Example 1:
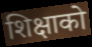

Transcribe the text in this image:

शिक्षाको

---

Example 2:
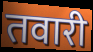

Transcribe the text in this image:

तवारी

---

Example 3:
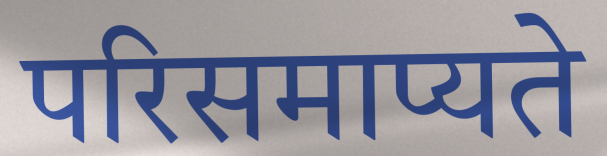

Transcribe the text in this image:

परिसमाप्यते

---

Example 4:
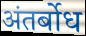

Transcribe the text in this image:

अंतर्बोध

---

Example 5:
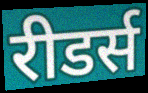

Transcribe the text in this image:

रीडर्स